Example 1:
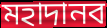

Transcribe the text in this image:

মহাদানব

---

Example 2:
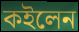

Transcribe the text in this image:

কইলেন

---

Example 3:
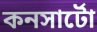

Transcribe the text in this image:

কনসার্টো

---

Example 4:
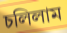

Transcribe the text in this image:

চলিলাম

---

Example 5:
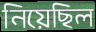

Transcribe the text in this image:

নিয়েছিল